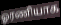
ஓரணியாக